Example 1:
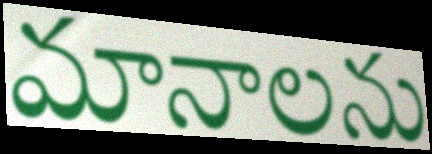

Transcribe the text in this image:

మానాలను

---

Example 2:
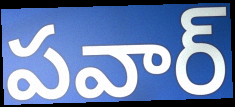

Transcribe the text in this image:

పవార్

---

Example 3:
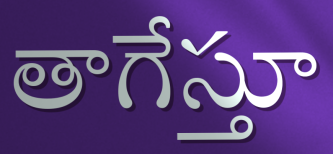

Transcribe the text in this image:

తాగేస్తూ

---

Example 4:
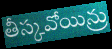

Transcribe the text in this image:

తీస్కవోయిన్రు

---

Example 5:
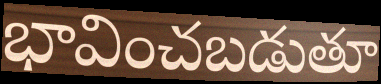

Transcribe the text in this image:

భావించబడుతూ